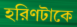
হরিণটাকে